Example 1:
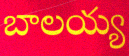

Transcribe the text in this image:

బాలయ్య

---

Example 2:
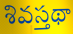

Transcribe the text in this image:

శివస్తథా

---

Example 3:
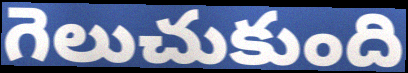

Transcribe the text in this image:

గెలుచుకుంది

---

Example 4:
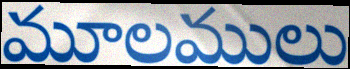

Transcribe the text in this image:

మూలములు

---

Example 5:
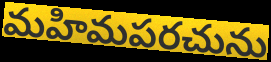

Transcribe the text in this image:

మహిమపరచును